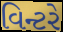
વિન્ટરે